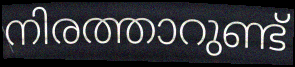
നിരത്താറുണ്ട്